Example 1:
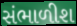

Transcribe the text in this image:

સંભાળીશ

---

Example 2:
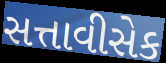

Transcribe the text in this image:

સત્તાવીસેક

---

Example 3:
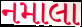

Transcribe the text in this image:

નમાલા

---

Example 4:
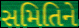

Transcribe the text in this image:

સમિતિને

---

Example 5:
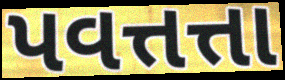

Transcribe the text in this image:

પવત્તત્તા